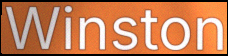
Winston